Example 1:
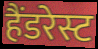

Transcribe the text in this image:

हैंडरेस्ट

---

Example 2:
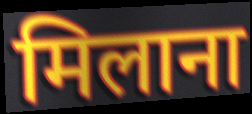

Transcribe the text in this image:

मिलाना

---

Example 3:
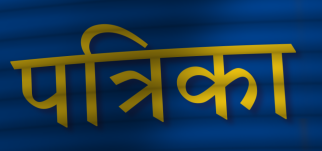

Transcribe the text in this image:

पत्रिका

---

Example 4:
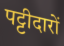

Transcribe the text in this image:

पट्टीदारों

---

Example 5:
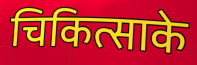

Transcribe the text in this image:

चिकित्साके